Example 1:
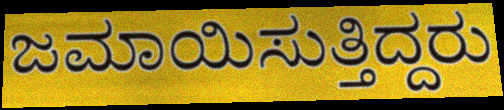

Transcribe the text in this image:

ಜಮಾಯಿಸುತ್ತಿದ್ದರು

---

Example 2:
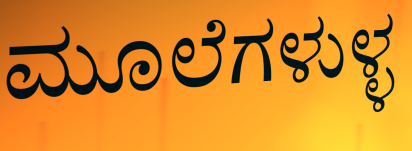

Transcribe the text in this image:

ಮೂಲೆಗಳುಳ್ಳ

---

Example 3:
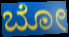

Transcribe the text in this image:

ಬೋ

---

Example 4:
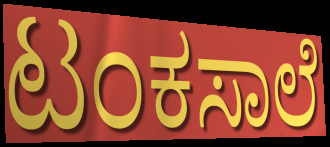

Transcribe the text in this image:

ಟಂಕಸಾಲೆ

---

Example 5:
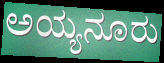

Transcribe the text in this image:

ಅಯ್ಯನೂರು